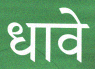
धावे